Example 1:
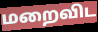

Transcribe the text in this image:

மறைவிட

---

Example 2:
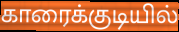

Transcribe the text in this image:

காரைக்குடியில்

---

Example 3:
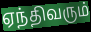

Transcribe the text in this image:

ஏந்திவரும்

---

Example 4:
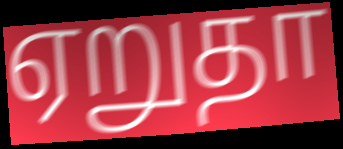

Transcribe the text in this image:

ஏறுதா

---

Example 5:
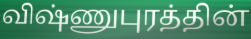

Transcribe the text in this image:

விஷ்ணுபுரத்தின்